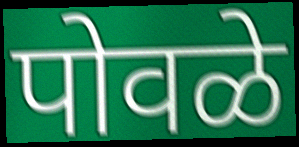
पोवळे